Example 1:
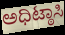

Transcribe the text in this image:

ಅಧಿಟ್ಠಾಸಿ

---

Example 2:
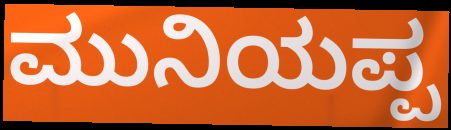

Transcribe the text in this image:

ಮುನಿಯಪ್ಪ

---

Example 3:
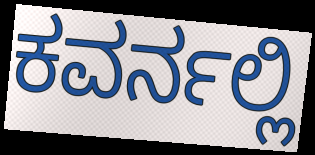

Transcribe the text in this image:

ಕವರ್ನಲ್ಲಿ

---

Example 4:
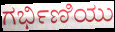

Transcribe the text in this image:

ಗರ್ಭಿಣಿಯು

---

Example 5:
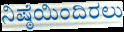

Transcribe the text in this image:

ನಿಷ್ಠೆಯಿಂದಿರಲು